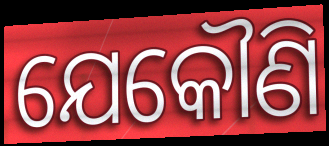
ଯେକୌଣି